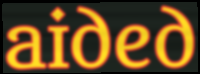
aided